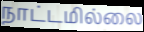
நாட்டமில்லை